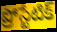
ప్రోస్టేటిక్